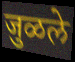
जुळले